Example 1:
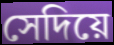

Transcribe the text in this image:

সেদিয়ে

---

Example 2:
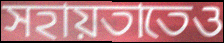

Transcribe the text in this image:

সহায়তাতেও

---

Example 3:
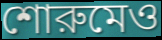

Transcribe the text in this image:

শোরুমেও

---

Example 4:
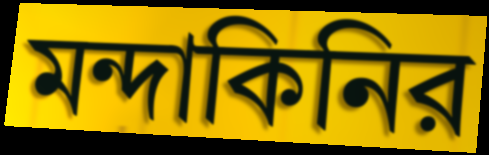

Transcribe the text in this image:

মন্দাকিনির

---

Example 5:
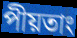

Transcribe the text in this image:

পীয়তাং